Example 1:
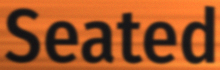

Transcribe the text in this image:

Seated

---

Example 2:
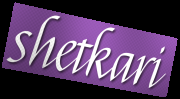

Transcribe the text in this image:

shetkari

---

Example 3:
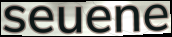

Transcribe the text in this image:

seuene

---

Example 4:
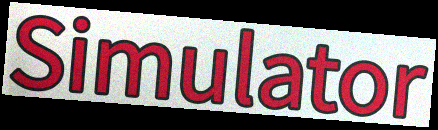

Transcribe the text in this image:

Simulator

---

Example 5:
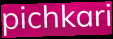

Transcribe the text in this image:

pichkari